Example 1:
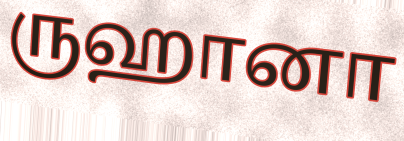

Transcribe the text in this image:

ருஹானா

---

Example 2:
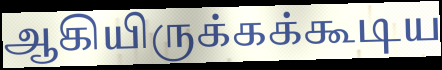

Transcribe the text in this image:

ஆகியிருக்கக்கூடிய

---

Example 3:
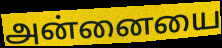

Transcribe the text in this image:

அன்னையை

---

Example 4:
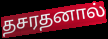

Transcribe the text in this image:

தசரதனால்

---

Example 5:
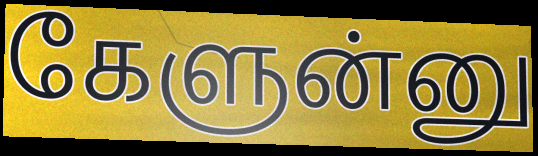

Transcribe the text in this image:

கேளுன்னு